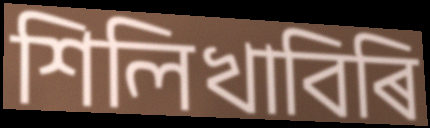
শিলিখাবিৰি